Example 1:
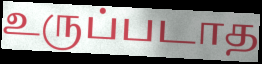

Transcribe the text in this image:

உருப்படாத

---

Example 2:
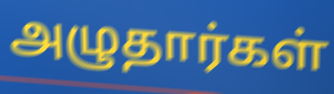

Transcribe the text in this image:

அழுதார்கள்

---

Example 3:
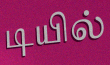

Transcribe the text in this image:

டியில்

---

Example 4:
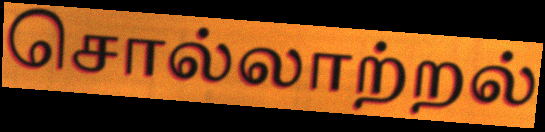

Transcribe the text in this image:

சொல்லாற்றல்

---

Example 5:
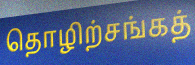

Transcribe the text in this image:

தொழிற்சங்கத்